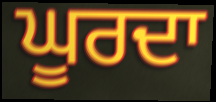
ਘੂਰਦਾ